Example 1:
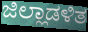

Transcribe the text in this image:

ಜಿಲ್ಲಾಡಳಿತ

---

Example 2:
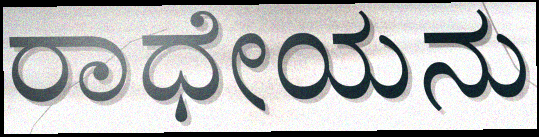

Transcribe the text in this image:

ರಾಧೇಯನು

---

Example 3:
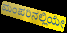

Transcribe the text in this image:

ಮಂಪರಿನಲ್ಲಿಯೇ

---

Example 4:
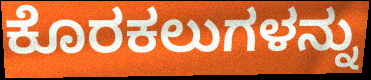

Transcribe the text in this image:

ಕೊರಕಲುಗಳನ್ನು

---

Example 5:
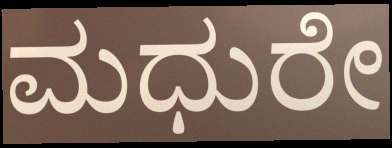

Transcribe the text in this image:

ಮಧುರೇ